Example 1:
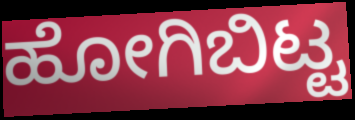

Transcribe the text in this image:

ಹೋಗಿಬಿಟ್ಟ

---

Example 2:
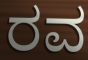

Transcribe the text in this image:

ರವ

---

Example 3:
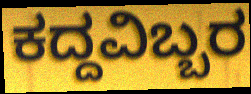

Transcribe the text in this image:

ಕದ್ದವಿಬ್ಬರ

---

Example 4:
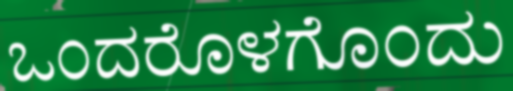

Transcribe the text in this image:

ಒಂದರೊಳಗೊಂದು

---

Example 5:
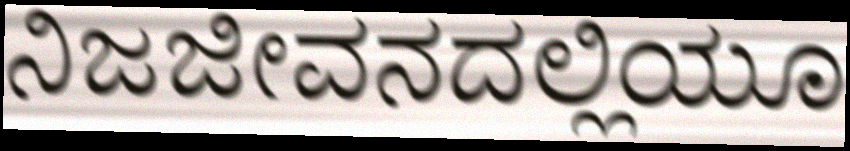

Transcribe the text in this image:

ನಿಜಜೀವನದಲ್ಲಿಯೂ